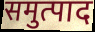
समुत्पाद